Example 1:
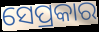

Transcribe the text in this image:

ସେପ୍ରକାର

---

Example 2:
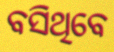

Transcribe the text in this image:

ବସିଥିବେ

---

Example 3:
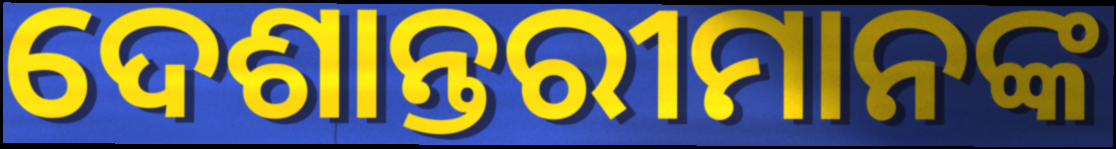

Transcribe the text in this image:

ଦେଶାନ୍ତରୀମାନଙ୍କ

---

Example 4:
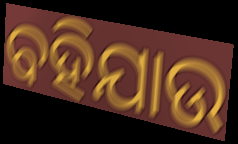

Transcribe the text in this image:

ବହିଯାଉ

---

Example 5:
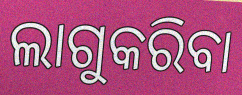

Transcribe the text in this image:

ଲାଗୁକରିବା